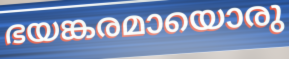
ഭയങ്കരമായൊരു